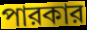
পারকার